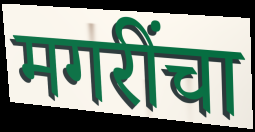
मगरींचा